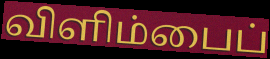
விளிம்பைப்